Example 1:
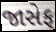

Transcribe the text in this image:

જાસેફ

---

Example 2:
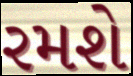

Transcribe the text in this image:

રમશે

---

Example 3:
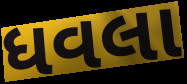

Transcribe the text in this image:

ધવલા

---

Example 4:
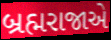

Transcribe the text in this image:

બ્રહ્મરાજાએ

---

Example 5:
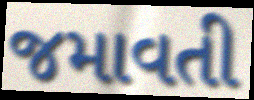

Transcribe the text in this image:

જમાવતી